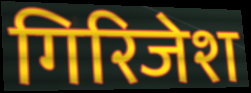
गिरिजेश